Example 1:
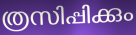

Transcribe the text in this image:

ത്രസിപ്പിക്കും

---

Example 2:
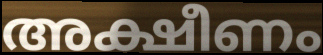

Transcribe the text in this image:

അക്ഷീണം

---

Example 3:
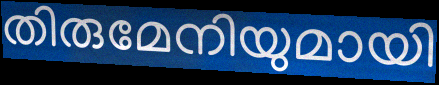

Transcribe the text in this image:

തിരുമേനിയുമായി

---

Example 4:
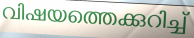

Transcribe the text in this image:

വിഷയത്തെക്കുറിച്ച്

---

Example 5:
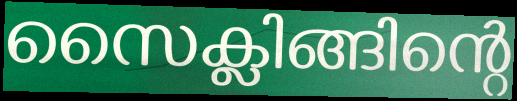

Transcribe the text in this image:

സൈക്ലിങ്ങിന്റെ